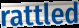
rattled